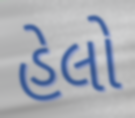
હેલો